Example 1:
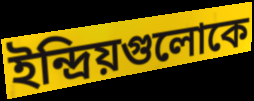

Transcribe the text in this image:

ইন্দ্রিয়গুলোকে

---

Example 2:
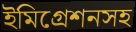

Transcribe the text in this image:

ইমিগ্রেশনসহ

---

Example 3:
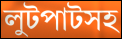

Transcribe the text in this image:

লুটপাটসহ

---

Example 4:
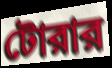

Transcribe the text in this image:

টোরার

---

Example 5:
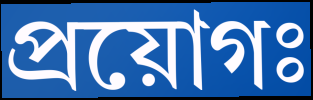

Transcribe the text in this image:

প্রয়োগঃ